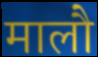
मालौ